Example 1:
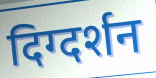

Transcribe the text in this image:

दिग्दर्शन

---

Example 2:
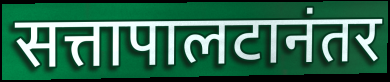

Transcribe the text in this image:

सत्तापालटानंतर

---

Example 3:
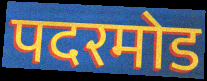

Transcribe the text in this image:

पदरमोड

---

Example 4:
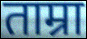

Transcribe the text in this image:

ताम्रा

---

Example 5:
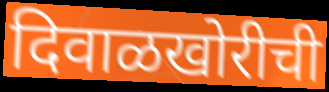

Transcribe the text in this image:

दिवाळखोरीची